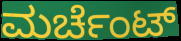
ಮರ್ಚೆಂಟ್